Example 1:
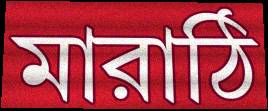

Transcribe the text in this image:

মারাঠি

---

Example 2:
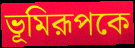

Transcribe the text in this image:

ভূমিরূপকে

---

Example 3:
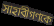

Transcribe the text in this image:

সাহাবীগণকে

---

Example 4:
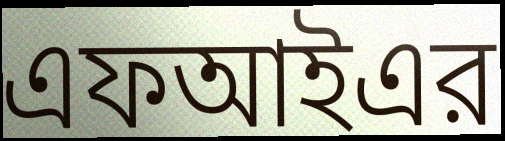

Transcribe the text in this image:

এফআইএর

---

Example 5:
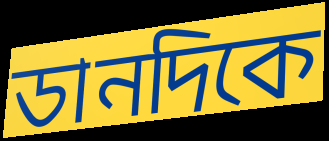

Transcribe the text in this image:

ডানদিকে